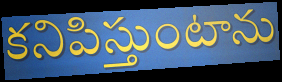
కనిపిస్తుంటాను